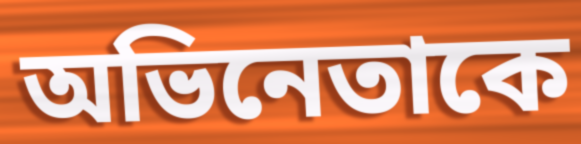
অভিনেতাকে